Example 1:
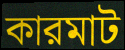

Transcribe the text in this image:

কারমাট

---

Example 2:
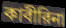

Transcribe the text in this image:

কাবীরিনা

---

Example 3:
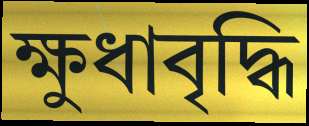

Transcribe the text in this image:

ক্ষুধাবৃদ্ধি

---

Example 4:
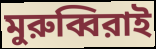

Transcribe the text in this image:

মুরুব্বিরাই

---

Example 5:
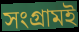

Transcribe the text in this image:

সংগ্রামই